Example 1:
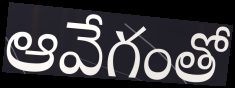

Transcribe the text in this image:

ఆవేగంతో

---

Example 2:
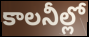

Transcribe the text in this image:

కాలనీల్లో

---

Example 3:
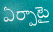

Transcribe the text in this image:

ఏర్పాటై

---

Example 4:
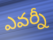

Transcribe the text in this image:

ఎవర్నీ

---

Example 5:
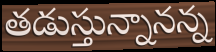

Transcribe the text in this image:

తడుస్తున్నానన్న